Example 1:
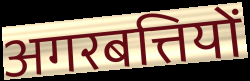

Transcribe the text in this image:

अगरबत्तियों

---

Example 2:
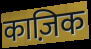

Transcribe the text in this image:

काज़िक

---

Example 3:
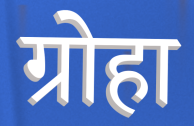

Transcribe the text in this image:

ग्रोहा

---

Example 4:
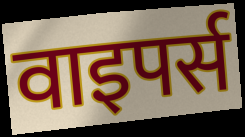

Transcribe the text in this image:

वाइपर्स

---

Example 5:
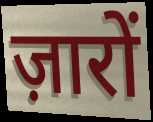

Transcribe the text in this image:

ज़ारों